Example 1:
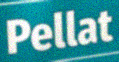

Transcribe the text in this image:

Pellat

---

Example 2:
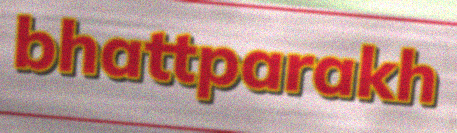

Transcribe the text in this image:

bhattparakh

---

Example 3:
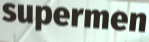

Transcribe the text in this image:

supermen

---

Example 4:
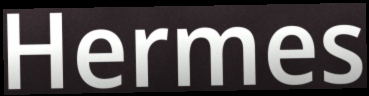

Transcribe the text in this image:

Hermes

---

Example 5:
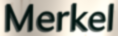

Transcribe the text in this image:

Merkel